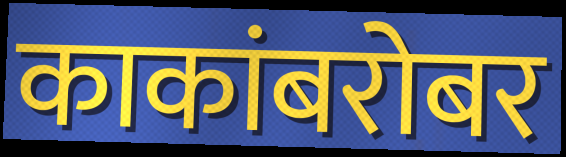
काकांबरोबर